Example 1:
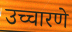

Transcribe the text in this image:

उच्चारणे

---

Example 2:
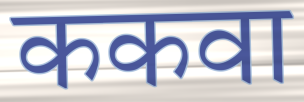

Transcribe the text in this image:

ककवा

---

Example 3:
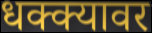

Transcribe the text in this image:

धक्क्यावर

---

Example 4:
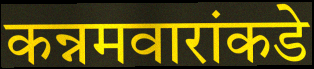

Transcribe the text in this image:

कन्नमवारांकडे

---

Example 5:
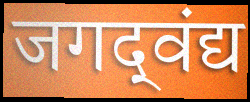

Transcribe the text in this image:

जगद्‌वंद्य